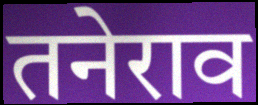
तनेराव